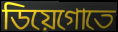
ডিয়েগোতে